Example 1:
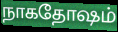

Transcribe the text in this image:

நாகதோஷம்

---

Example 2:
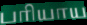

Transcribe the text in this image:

பரியாய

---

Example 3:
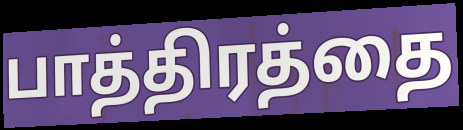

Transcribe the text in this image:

பாத்திரத்தை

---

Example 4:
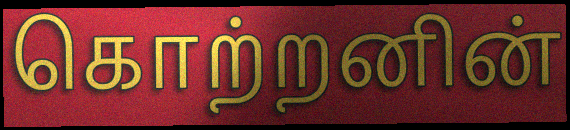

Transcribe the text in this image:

கொற்றனின்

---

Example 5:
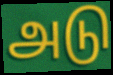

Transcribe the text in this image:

அடு